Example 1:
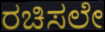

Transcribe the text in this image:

ರಚಿಸಲೇ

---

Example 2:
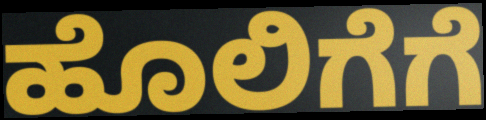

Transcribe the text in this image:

ಹೊಲಿಗೆಗೆ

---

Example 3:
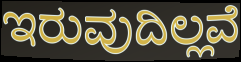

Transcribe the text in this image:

ಇರುವುದಿಲ್ಲವೆ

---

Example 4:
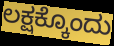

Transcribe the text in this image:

ಲಕ್ಷಕ್ಕೊಂದು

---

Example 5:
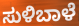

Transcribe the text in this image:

ಸುಳಿಬಾಳೆ